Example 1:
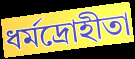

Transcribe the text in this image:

ধর্মদ্রোহীতা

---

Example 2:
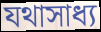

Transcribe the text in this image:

যথাসাধ্য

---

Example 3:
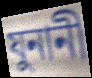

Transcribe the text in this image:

যুনানী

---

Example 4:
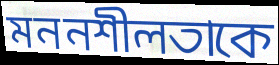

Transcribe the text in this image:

মননশীলতাকে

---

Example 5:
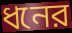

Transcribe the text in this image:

ধনের